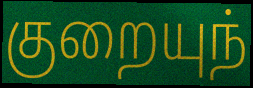
குறையுந்